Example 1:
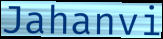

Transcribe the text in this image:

Jahanvi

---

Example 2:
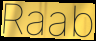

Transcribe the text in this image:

Raab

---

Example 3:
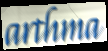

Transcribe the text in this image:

arthma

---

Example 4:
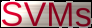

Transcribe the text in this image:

SVMs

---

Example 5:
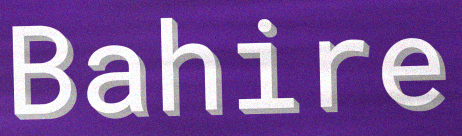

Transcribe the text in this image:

Bahire